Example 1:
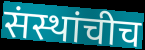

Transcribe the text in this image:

संस्थांचीच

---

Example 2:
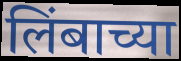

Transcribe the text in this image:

लिंबाच्या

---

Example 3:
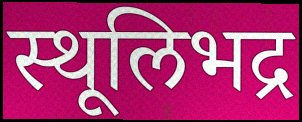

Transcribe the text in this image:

स्थूलिभद्र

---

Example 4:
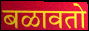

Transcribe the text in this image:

बळावतो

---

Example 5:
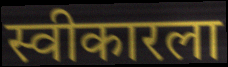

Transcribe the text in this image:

स्वीकारला